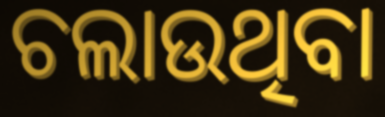
ଚଲାଉଥିବା